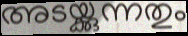
അടയ്ക്കുന്നതും